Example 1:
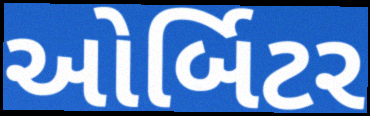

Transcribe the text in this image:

ઓર્બિટર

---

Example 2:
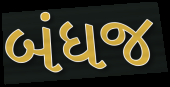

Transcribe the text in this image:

બંધજ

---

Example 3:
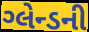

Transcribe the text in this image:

ગ્લેન્ડની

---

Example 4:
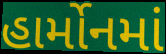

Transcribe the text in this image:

હાર્મોનમાં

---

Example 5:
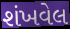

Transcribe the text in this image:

શંખવેલ